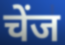
चेंज